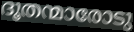
ദൂതന്മാരോടു